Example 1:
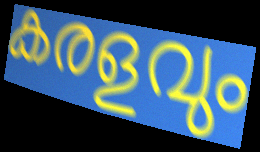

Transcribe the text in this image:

കരളവും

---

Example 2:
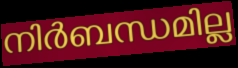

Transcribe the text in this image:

നിർബന്ധമില്ല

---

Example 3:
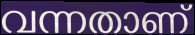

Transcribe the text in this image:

വന്നതാണ്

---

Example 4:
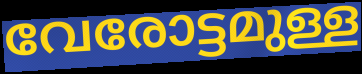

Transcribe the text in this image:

വേരോട്ടമുള്ള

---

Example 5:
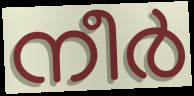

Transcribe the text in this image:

നീർ